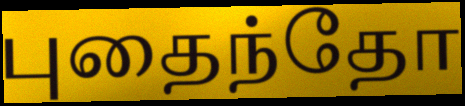
புதைந்தோ